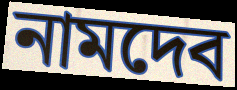
নামদেব